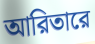
আরিতারে